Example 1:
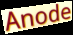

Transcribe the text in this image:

Anode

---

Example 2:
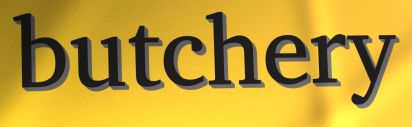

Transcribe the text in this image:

butchery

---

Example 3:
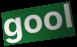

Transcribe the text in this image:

gool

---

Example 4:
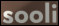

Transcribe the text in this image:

sooli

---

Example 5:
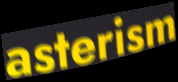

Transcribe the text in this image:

asterism